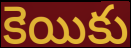
కెయికు